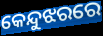
କେନ୍ଦୁଝରରେ